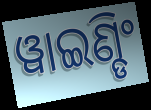
ୱାଇଣ୍ଡିଂ